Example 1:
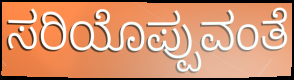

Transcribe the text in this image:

ಸರಿಯೊಪ್ಪುವಂತೆ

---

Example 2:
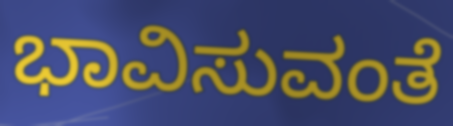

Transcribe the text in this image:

ಭಾವಿಸುವಂತೆ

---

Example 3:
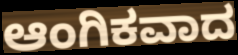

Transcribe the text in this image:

ಆಂಗಿಕವಾದ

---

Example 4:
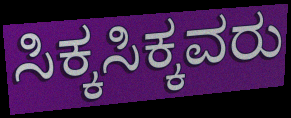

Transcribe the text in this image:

ಸಿಕ್ಕಸಿಕ್ಕವರು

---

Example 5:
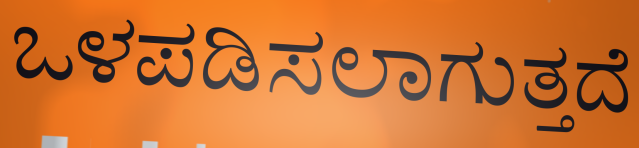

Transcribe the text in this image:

ಒಳಪಡಿಸಲಾಗುತ್ತದೆ